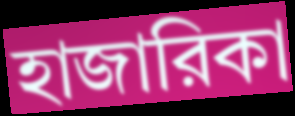
হাজারিকা